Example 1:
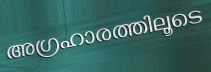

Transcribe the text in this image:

അഗ്രഹാരത്തിലൂടെ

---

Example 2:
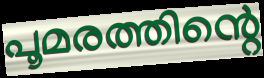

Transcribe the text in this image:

പൂമരത്തിന്റെ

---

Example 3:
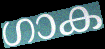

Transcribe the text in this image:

ഗാക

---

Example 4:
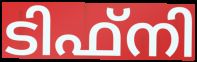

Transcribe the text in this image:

ടിഫ്നി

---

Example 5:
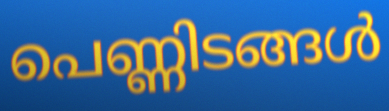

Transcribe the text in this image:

പെണ്ണിടങ്ങൾ